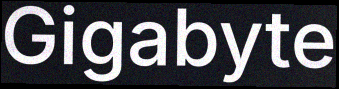
Gigabyte